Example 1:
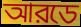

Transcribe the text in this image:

আরডে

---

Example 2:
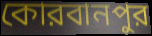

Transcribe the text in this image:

কোরবানপুর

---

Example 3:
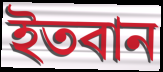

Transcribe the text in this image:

ইতবান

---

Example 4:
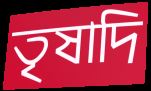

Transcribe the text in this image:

তৃষাদি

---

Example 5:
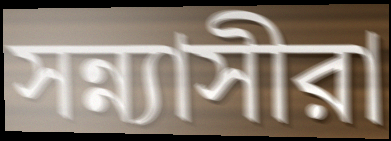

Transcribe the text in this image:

সন্ন্যাসীরা